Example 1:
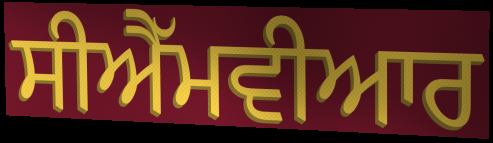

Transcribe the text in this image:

ਸੀਐੱਮਵੀਆਰ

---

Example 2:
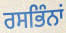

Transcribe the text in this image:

ਰਸਭਿੰਨਾਂ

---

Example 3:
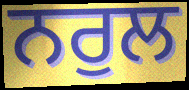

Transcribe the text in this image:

ਨਰੁਲ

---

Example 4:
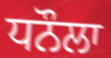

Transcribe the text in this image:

ਧਨੌਲਾ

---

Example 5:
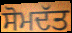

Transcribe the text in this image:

ਸੋਮਦੱਤ